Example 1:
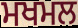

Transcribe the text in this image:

ਮਖਮਲ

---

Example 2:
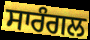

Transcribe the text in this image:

ਸਾਰੰਗਲ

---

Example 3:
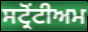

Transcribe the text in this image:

ਸਟ੍ਰੋਂਟੀਅਮ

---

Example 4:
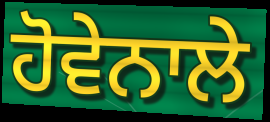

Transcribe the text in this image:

ਹੋਵੇਨਾਲੇ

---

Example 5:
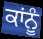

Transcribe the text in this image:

ਕਾਂਨੂੰ